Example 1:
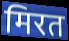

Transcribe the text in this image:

मिरत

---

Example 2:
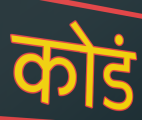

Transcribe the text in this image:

कोडं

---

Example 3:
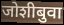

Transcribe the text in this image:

जोशीबुवा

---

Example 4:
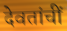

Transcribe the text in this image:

देवतांचीं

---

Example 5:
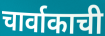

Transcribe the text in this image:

चार्वाकाची